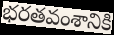
భరతవంశానికి